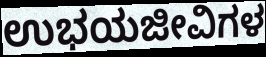
ಉಭಯಜೀವಿಗಳ